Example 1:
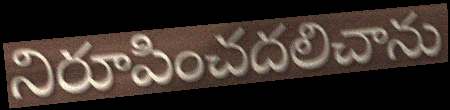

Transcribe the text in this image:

నిరూపించదలిచాను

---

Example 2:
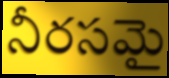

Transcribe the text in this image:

నీరసమై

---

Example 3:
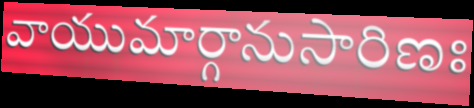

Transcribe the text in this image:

వాయుమార్గానుసారిణః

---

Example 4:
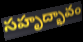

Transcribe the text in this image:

సహృద్భావం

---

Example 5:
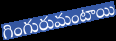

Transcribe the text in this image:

గింగురుమంటాయి